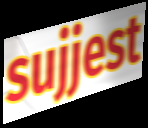
sujjest